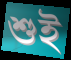
শুই